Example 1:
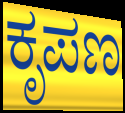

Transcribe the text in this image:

ಕೃಪಣ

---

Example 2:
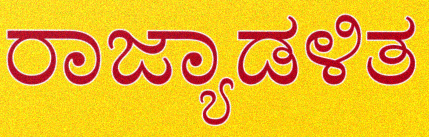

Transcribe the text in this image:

ರಾಜ್ಯಾಡಳಿತ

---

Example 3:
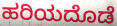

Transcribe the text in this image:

ಹರಿಯದೊಡೆ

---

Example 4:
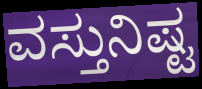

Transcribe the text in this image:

ವಸ್ತುನಿಷ್ಟ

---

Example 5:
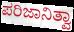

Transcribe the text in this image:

ಪರಿಜಾನಿತ್ವಾ